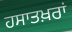
ਹਸਾਤਖ਼ਰਾਂ